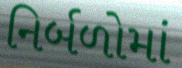
નિર્બળોમાં